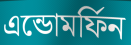
এন্ডোমর্ফিন